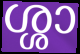
ശ്ശാ